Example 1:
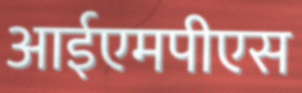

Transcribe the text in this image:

आईएमपीएस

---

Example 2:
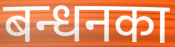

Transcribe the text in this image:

बन्धनका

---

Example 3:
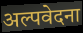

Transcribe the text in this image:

अल्पवेदना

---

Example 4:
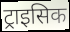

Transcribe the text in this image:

ट्राइसिक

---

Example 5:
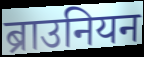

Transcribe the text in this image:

ब्राउनियन